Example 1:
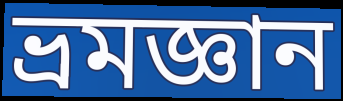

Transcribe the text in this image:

ভ্রমজ্ঞান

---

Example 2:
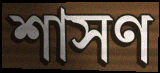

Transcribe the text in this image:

শাসণ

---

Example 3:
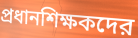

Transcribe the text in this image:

প্রধানশিক্ষকদের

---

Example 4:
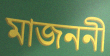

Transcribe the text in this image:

মাজননী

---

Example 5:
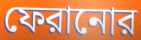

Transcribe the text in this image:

ফেরানোর